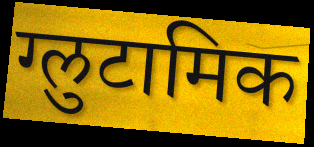
ग्लुटामिक